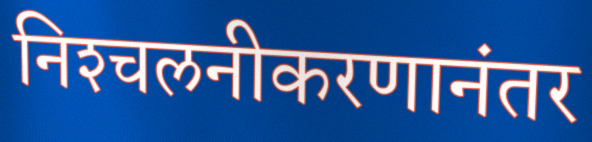
निश्चलनीकरणानंतर